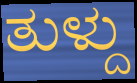
ತುಳ್ದು